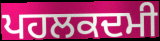
ਪਹਲਕਦਮੀ